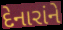
દેનારાંને